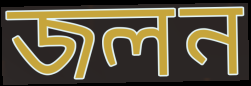
জলন